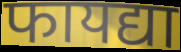
फायद्या